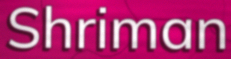
Shriman